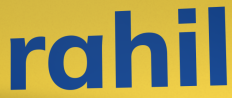
rahil